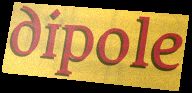
dipole